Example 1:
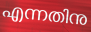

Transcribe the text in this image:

എന്നതിനു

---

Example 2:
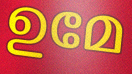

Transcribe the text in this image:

ഉമേ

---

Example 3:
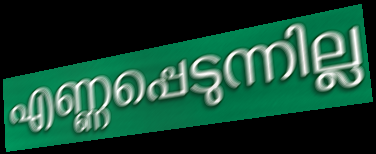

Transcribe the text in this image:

എണ്ണപ്പെടുന്നില്ല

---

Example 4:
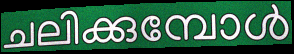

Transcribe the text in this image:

ചലിക്കുമ്പോൾ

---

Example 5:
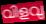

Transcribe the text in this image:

വിളവു